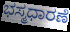
ಭಸ್ಮಧಾರಣೆ